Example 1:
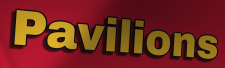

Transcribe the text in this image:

Pavilions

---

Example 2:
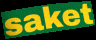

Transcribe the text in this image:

saket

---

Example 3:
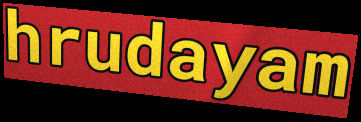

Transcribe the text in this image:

hrudayam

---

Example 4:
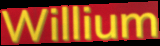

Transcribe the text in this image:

Willium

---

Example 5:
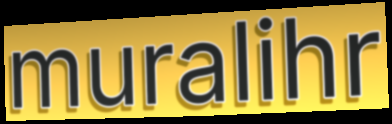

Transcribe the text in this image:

muralihr